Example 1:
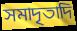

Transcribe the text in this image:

সমাদৃতাদি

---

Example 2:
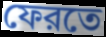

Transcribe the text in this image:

ফেরতে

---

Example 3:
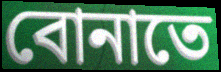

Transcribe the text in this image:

বোনাতে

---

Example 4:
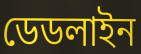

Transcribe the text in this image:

ডেডলাইন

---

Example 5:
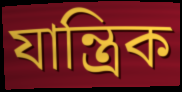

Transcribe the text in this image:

যান্ত্রিক